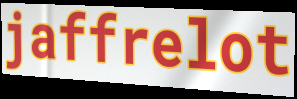
jaffrelot